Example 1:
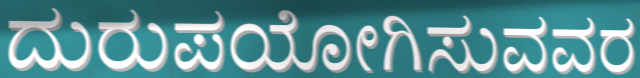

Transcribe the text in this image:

ದುರುಪಯೋಗಿಸುವವರ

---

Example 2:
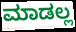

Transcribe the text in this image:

ಮಾಡಲ್ಲ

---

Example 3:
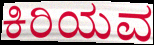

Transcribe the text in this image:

ಕಿರಿಯವ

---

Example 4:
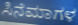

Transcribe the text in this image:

ಸಿನೆಮಾಗಳ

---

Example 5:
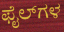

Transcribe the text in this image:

ಫೈಲ್‌ಗಳ